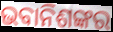
ଭବାନିଶଙ୍କର